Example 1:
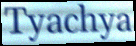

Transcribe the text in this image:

Tyachya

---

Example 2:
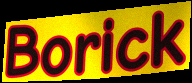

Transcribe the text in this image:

Borick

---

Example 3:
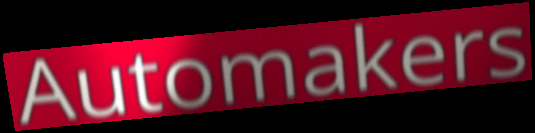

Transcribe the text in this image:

Automakers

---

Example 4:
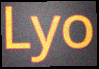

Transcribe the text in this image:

Lyo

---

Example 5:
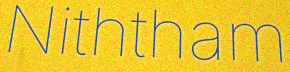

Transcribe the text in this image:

Niththam